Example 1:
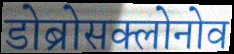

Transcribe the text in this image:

डोब्रोसक्लोनोव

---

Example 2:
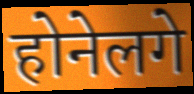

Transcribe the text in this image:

होनेलगे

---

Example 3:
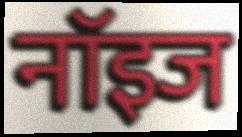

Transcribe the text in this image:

नॉइज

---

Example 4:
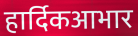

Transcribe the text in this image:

हार्दिकआभार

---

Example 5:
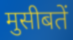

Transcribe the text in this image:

मुसीबतें